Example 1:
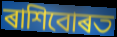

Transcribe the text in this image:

ৰাশিবোৰত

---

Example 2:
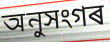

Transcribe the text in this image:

অনুসংগৰ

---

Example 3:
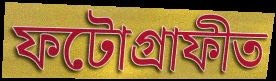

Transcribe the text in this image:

ফটোগ্ৰাফীত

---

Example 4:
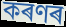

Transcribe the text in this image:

কৰণৰ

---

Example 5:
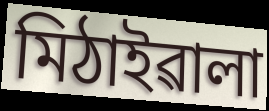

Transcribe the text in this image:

মিঠাইৱালা